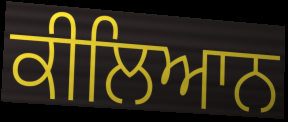
ਕੀਲਿਆਨ